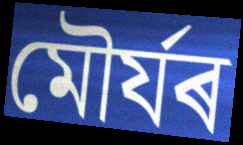
মৌৰ্যৰ